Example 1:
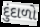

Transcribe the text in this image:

દુંદાળો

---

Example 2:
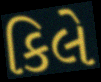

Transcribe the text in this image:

કિલે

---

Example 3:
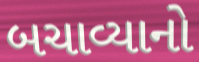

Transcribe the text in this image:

બચાવ્યાનો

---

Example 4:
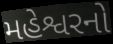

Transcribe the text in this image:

મહેશ્વરનો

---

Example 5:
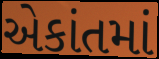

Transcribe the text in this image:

એકાંતમાં